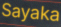
Sayaka